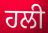
ਹਲੀ